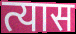
त्यास